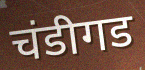
चंडीगड